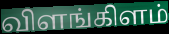
விளங்கிளம்